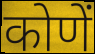
कोणें